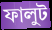
ফালুট